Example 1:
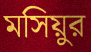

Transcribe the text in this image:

মসিয়ুর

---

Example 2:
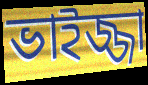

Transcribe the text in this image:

ভাইজ্জা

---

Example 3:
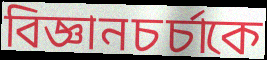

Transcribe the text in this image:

বিজ্ঞানচর্চাকে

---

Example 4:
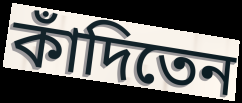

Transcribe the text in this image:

কাঁদিতেন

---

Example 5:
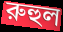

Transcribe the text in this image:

রুহুল